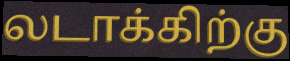
லடாக்கிற்கு